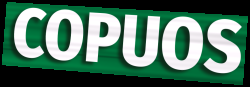
COPUOS